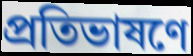
প্রতিভাষণে